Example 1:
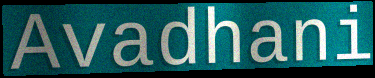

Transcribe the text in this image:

Avadhani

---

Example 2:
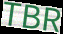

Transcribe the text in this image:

TBR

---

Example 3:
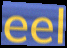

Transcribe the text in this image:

eel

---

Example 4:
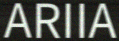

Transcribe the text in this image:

ARIIA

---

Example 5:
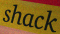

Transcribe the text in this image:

shack